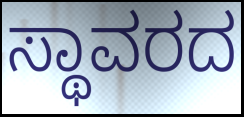
ಸ್ಥಾವರದ